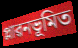
প্লাৱনভূমিত